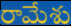
రామేశు